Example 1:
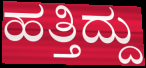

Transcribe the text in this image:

ಹತ್ತಿದ್ದು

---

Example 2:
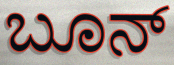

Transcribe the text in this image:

ಬೂನ್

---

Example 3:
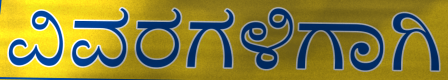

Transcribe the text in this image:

ವಿವರಗಳಿಗಾಗಿ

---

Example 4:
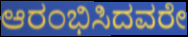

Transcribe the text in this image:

ಆರಂಭಿಸಿದವರೇ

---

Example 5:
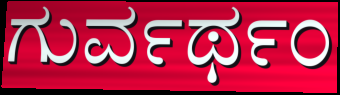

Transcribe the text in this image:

ಗುರ್ವರ್ಥಂ